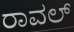
ರಾವಲ್